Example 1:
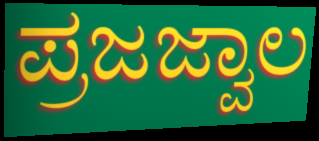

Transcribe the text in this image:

ಪ್ರಜಜ್ವಾಲ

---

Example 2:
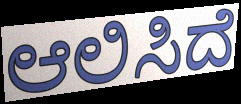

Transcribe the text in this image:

ಆಲಿಸಿದೆ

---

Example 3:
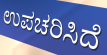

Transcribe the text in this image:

ಉಪಚರಿಸಿದೆ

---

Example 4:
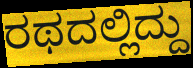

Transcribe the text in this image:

ರಥದಲ್ಲಿದ್ದು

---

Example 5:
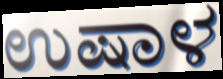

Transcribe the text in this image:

ಉಷಾಳ